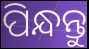
ପିନ୍ଧନ୍ତୁ